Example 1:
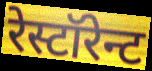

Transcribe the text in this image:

रेस्टॉरेन्ट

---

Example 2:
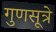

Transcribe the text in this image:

गुणसूत्रे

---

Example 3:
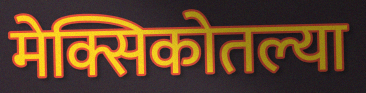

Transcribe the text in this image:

मेक्सिकोतल्या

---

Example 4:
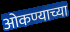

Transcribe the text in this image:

ओकण्याच्या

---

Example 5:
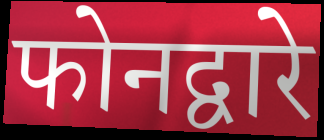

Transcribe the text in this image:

फोनद्वारे